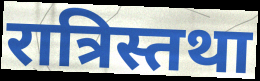
रात्रिस्तथा